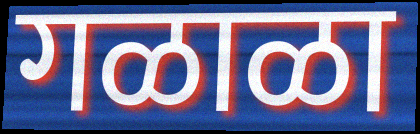
गळाळा